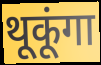
थूकूंगा